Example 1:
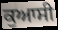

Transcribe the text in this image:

ਕੁਆਸੀ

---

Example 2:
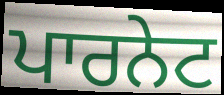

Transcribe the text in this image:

ਪਾਰਨੇਟ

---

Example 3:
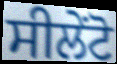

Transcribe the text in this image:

ਸੀਲੇਂਟੋ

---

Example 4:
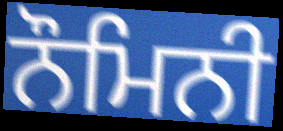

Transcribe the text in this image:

ਨੌਮਿਨੀ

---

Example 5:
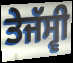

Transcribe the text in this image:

ਤੇਜੱਸ੍ਵੀ